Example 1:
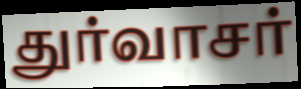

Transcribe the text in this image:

துர்வாசர்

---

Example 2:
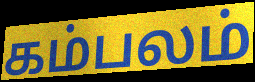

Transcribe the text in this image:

கம்பலம்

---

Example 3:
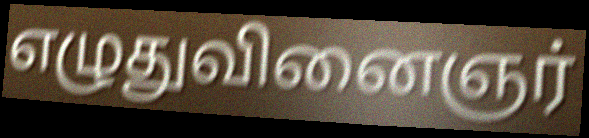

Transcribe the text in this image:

எழுதுவினைஞர்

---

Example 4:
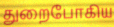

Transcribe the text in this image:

துறைபோகிய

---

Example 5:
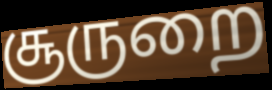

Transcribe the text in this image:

சூருறை